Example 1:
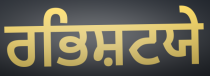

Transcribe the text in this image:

ਰਭਿਸ਼ਟਯੇ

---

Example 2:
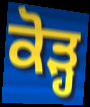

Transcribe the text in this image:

ਕੋੜ੍ਹ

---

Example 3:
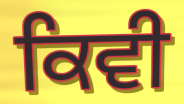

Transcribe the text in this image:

ਕਿਵੀ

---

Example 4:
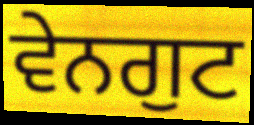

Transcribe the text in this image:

ਵੇਨਗੁਟ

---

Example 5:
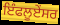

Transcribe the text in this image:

ਇੰਫਲੂਏਂਸਰ